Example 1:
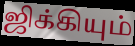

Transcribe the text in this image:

ஜிக்கியும்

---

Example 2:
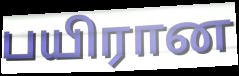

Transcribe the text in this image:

பயிரான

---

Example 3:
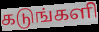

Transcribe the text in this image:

கடுங்களி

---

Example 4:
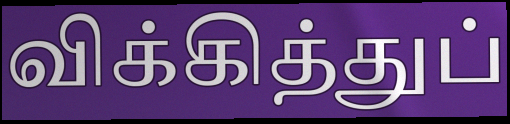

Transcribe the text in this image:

விக்கித்துப்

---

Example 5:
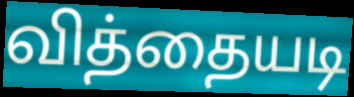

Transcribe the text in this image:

வித்தையடி